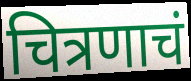
चित्रणाचं